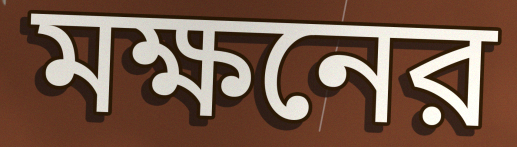
মক্ষনের